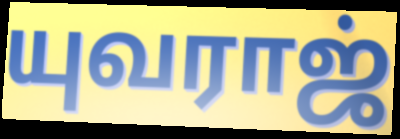
யுவராஜ்